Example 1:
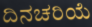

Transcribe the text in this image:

ದಿನಚರಿಯೆ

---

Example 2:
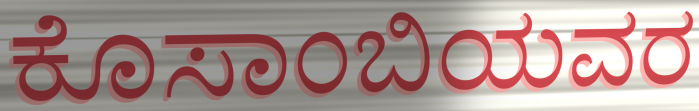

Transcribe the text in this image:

ಕೊಸಾಂಬಿಯವರ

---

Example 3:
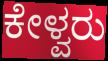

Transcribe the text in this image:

ಕೇಳ್ವರು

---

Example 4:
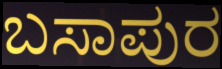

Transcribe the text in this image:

ಬಸಾಪುರ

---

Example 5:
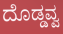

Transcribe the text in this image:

ದೊಡ್ಡವ್ವ